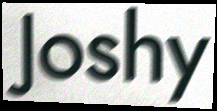
Joshy